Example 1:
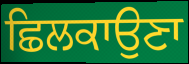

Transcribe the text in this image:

ਛਿਲਕਾਉਣਾ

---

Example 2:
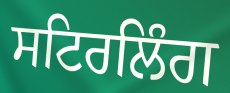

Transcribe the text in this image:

ਸਟਿਰਲਿੰਗ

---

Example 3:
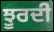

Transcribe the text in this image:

ਝੂਰਦੀ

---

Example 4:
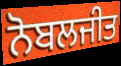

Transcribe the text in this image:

ਨੋਬਲਜੀਤ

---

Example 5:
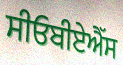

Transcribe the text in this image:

ਸੀਓਬੀਏਐੱਸ